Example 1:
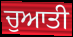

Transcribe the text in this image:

ਚੁਆਤੀ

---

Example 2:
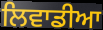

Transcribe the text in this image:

ਲਿਵਾਡੀਆ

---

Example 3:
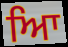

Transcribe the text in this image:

ਆਿ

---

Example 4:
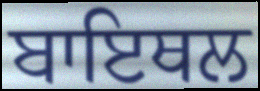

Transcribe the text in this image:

ਬਾਇਥਲ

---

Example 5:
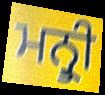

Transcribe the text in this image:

ਮਨ੍ਤ੍ਰੀ